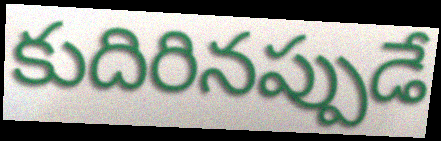
కుదిరినప్పుడే